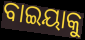
ବାଇୟାକୁ